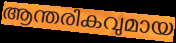
ആന്തരികവുമായ